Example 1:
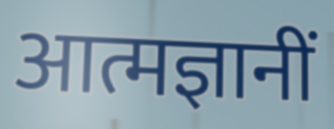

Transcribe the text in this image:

आत्मज्ञानीं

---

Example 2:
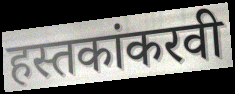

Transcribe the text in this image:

हस्तकांकरवी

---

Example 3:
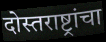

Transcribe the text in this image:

दोस्तराष्ट्रांचा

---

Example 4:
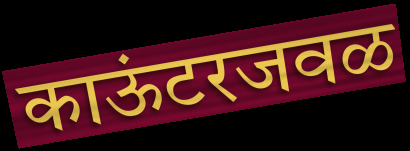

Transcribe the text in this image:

काऊंटरजवळ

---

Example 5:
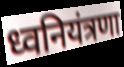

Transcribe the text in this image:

ध्वनियंत्रणा